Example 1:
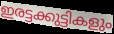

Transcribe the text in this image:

ഇരട്ടക്കുട്ടികളും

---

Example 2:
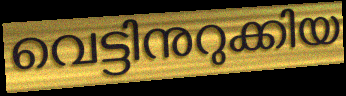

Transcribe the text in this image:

വെട്ടിനുറുക്കിയ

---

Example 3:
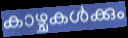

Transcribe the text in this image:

കാഴ്ചകൾക്കും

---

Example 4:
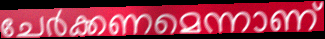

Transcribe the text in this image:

ചേർക്കണമെന്നാണ്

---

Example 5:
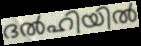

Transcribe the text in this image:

ദൽഹിയിൽ